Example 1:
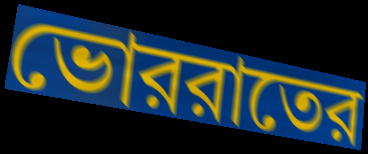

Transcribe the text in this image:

ভোররাতের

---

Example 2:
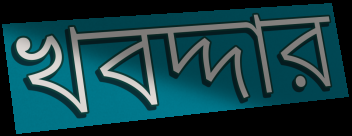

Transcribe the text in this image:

খবদ্দার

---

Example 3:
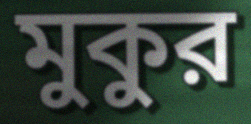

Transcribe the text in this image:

মুকুর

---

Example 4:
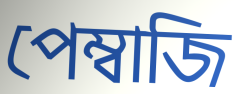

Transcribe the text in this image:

পেম্বাজি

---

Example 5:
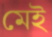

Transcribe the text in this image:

মেই